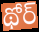
థోర్